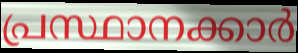
പ്രസ്ഥാനക്കാർ